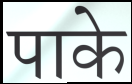
पाके